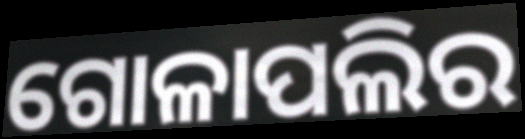
ଗୋଳାପଲିର